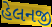
હેલનજી